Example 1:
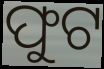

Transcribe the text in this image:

ଫୁଟ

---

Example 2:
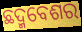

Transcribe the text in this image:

ଛଦ୍ମବେଶର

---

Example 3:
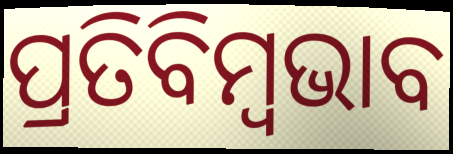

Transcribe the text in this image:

ପ୍ରତିବିମ୍ବଭାବ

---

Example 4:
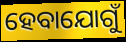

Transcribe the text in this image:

ହେବାଯୋଗୁଁ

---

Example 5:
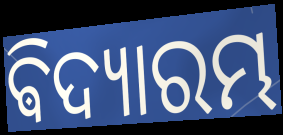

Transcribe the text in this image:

ଵିଦ୍ୟାରମ୍ଭ